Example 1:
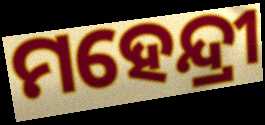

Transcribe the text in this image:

ମହେନ୍ଦ୍ରୀ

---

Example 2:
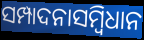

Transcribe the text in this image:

ସମ୍ପାଦନାସମ୍ବିଧାନ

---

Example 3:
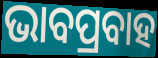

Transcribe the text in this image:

ଭାବପ୍ରବାହ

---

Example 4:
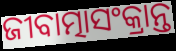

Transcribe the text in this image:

ଜୀବାତ୍ମାସଂକ୍ରାନ୍ତ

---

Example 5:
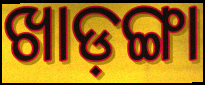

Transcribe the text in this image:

ଖାଡ଼ଙ୍ଗା